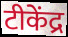
टीकेंद्र